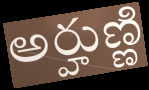
అర్హుణ్ణి